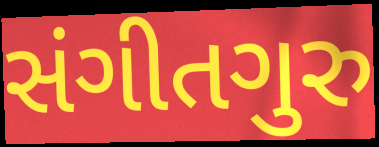
સંગીતગુરુ